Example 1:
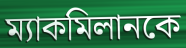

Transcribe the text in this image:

ম্যাকমিলানকে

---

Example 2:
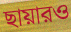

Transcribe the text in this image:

ছায়ারও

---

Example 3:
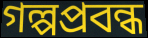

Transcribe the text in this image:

গল্পপ্রবন্ধ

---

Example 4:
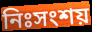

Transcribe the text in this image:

নিঃসংশয়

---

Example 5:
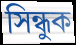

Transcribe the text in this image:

সিন্ধুক